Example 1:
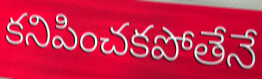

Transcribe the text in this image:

కనిపించకపోతేనే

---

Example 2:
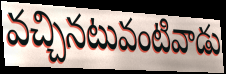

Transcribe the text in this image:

వచ్చినటువంటివాడు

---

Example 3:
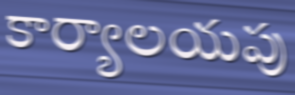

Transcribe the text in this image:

కార్యాలయపు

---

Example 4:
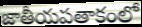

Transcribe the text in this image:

జాతీయపతాకంలో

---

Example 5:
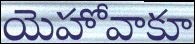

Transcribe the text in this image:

యెహోవాకూ